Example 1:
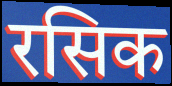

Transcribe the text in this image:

रसिक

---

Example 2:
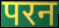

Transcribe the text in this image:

परन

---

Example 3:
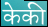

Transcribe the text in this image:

केकी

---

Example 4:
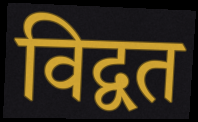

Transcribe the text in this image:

विद्वत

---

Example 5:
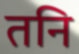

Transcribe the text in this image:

तनि